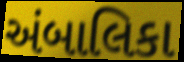
અંબાલિકા